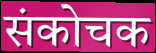
संकोचक